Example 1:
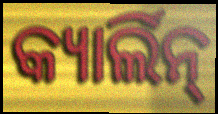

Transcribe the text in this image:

କ୍ୟାର୍ଲିନ୍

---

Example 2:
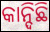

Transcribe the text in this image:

କାନ୍ଦିଛି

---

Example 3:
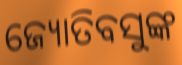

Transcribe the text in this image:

ଜ୍ୟୋତିବସୁଙ୍କ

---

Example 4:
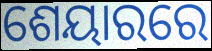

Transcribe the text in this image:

ଶେୟାରରେ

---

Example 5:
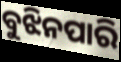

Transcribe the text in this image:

ବୁଝିନପାରି